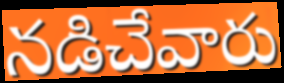
నడిచేవారు